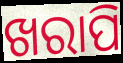
ଖରାପି